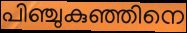
പിഞ്ചുകുഞ്ഞിനെ